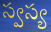
స్వస్య